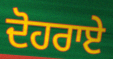
ਦੋਹਰਾਏ